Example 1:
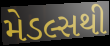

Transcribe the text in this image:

મેડલ્સથી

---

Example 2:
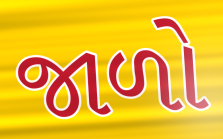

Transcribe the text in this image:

જાળો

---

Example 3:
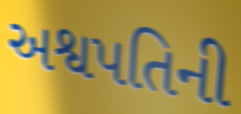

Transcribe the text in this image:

અશ્વપતિની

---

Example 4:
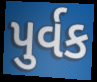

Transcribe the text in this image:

પુર્વક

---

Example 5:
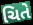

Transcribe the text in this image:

ચિતે